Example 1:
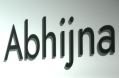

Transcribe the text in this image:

Abhijna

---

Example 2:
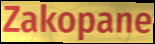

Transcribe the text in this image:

Zakopane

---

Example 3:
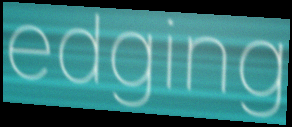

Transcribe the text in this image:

edging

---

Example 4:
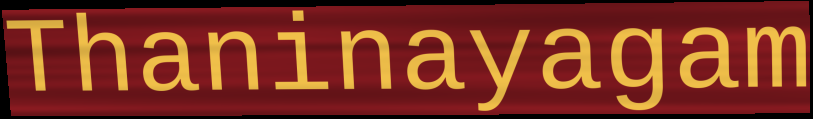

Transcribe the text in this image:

Thaninayagam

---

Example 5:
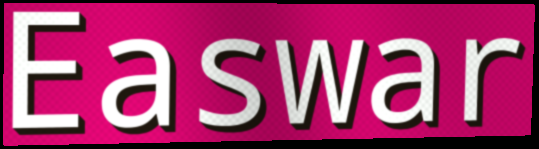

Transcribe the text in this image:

Easwar